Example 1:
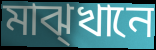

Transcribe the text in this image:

মাঝ্খানে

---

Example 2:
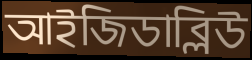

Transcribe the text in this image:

আইজিডাব্লিউ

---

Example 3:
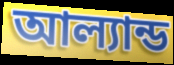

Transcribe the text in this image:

আল্যান্ড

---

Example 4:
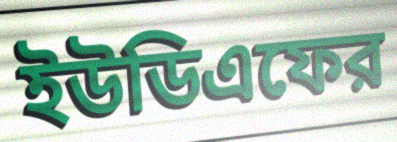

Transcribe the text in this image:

ইউডিএফের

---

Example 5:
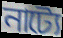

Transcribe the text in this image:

নাট্যে